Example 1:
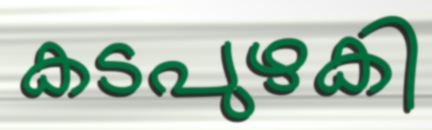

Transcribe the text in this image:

കടപുഴകി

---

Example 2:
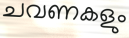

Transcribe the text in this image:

ചവണകളും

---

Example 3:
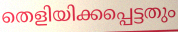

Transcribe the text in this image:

തെളിയിക്കപ്പെട്ടതും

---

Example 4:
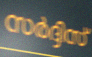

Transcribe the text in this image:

സർദ്ദിസ്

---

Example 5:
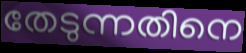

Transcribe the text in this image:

തേടുന്നതിനെ